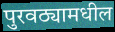
पुरवठ्यामधील